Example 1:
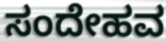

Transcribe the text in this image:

ಸಂದೇಹವ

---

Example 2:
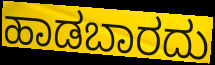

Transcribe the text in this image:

ಹಾಡಬಾರದು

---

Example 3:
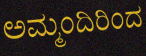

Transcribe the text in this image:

ಅಮ್ಮಂದಿರಿಂದ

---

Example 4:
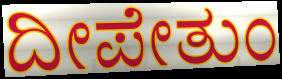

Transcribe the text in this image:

ದೀಪೇತುಂ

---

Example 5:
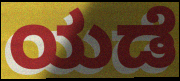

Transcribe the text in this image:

ಯಡೆ